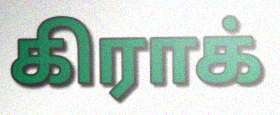
கிராக்